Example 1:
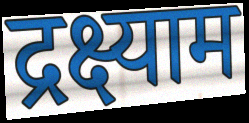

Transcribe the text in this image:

द्रक्ष्याम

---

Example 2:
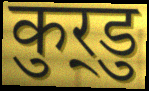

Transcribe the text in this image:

कुर्डु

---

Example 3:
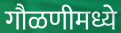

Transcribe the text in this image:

गौळणीमध्ये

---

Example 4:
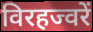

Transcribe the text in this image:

विरहज्वरें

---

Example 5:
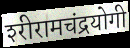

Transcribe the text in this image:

श्रीरामचंद्रयोगी